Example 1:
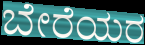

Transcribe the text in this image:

ಬೇರೆಯರ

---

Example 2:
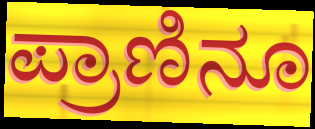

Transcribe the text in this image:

ಪ್ರಾಣಿನೂ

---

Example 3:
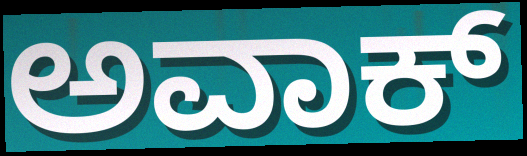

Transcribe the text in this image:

ಅವಾಕ್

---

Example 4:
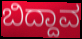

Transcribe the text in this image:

ಬಿದ್ದಾವ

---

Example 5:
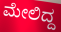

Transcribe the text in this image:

ಮೇಲಿದ್ದ